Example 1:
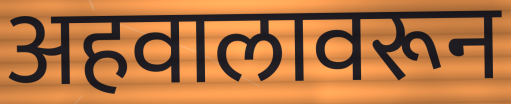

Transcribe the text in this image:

अहवालावरून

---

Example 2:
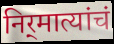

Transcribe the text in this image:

निर्मात्यांचं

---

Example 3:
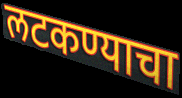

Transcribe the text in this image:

लटकण्याचा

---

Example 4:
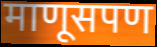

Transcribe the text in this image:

माणूसपण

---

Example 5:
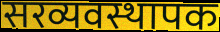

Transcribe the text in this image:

सरव्यवस्थापक